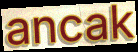
ancak